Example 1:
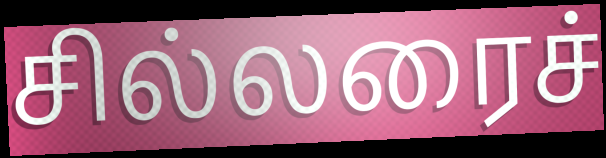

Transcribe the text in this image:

சில்லரைச்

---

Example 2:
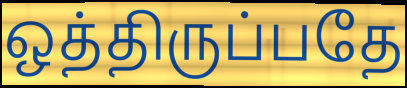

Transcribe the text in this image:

ஒத்திருப்பதே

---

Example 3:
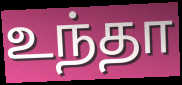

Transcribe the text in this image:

உந்தா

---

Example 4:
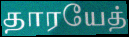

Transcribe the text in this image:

தாரயேத்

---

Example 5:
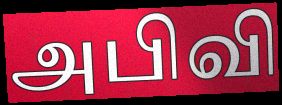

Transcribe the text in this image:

அபிவி